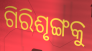
ଗିରିଶୃଙ୍ଗକୁ